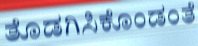
ತೊಡಗಿಸಿಕೊಂಡಂತೆ